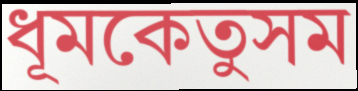
ধূমকেতুসম